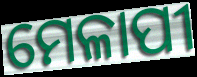
ମେଳାପୀ